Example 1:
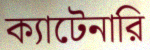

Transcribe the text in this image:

ক্যাটেনারি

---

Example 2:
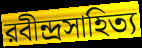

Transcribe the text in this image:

রবীন্দ্রসাহিত্য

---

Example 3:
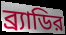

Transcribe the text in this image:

ব্র্যাডির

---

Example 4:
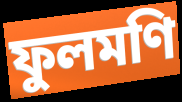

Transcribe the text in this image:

ফুলমণি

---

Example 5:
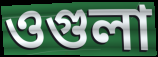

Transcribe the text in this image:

ওগুলা